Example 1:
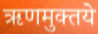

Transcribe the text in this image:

ऋणमुक्तये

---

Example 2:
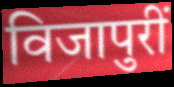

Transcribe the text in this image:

विजापुरीं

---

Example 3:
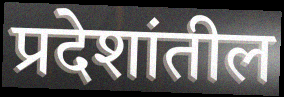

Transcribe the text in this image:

प्रदेशांतील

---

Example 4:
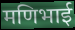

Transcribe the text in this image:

मणिभाई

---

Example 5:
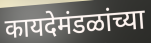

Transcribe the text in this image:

कायदेमंडळांच्या